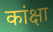
कांक्षा